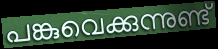
പങ്കുവെക്കുന്നുണ്ട്